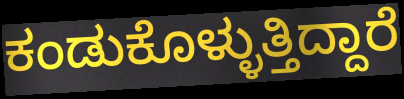
ಕಂಡುಕೊಳ್ಳುತ್ತಿದ್ದಾರೆ